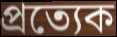
প্রত্যেক